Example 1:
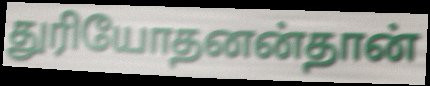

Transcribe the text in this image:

துரியோதனன்தான்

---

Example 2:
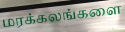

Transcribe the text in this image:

மரக்கலங்களை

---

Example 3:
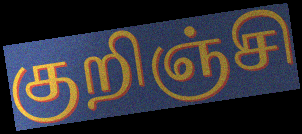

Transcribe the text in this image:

குறிஞ்சி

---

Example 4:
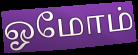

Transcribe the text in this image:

ஓமோம்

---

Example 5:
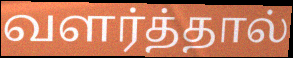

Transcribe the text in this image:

வளர்த்தால்